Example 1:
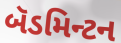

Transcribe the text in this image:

બૅડમિન્ટન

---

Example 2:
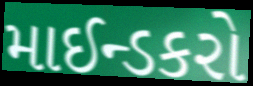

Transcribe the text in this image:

માઈન્ડકરો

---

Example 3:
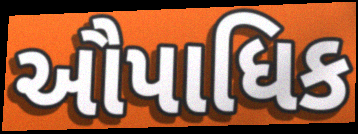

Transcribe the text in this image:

ઔપાધિક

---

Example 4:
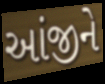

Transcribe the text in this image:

આંજીને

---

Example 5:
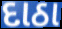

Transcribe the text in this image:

દાઠા